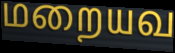
மறையவ